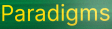
Paradigms